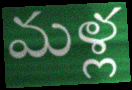
మళ్ల